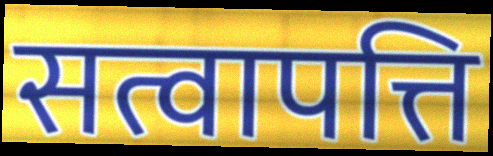
सत्वापत्ति